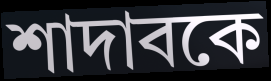
শাদাবকে